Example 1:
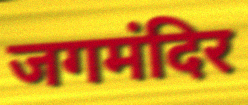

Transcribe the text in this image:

जगमंदिर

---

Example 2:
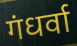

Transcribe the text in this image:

गंधर्वा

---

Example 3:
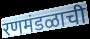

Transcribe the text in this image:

रणमंडळाची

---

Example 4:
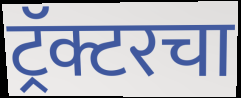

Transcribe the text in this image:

ट्रॅक्टरचा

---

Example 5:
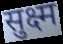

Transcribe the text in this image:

सुक्ष्म